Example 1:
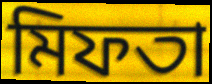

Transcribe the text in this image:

মিফতা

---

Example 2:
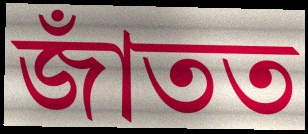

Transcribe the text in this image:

জাঁতত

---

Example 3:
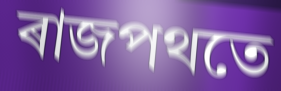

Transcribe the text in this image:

ৰাজপথতে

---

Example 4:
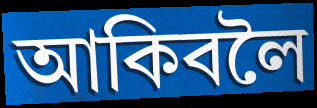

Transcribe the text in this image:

আকিবলৈ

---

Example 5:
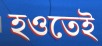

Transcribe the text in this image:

হওতেই